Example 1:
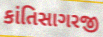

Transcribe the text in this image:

કાંતિસાગરજી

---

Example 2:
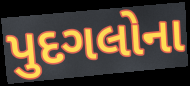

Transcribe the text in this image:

પુદગલોના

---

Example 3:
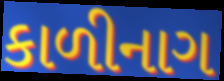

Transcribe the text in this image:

કાળીનાગ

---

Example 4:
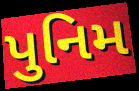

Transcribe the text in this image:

પુનિમ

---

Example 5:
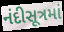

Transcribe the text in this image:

નંદીસૂત્રમાં